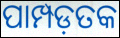
ପାମ୍ପଡ଼ତକ